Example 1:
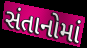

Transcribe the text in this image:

સંતાનોમાં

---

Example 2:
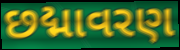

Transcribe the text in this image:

છદ્માવરણ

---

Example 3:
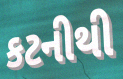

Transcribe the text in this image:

કટનીથી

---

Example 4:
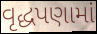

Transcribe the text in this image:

વૃદ્ધપણામાં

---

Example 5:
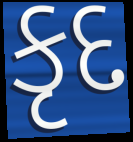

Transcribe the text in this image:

કૃદ